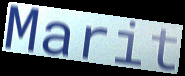
Marit